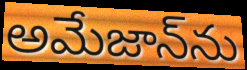
అమేజాన్‌ను